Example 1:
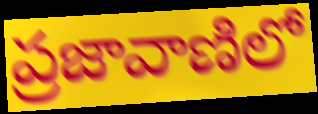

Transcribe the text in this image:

ప్రజావాణిలో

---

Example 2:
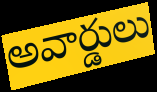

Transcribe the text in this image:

అవార్డులు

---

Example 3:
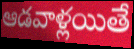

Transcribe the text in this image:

ఆడవాళ్లయితే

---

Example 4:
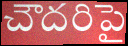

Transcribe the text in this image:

చౌదరిపై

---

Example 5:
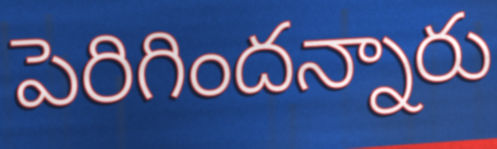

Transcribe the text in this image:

పెరిగిందన్నారు